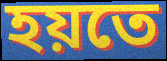
হয়তে